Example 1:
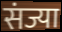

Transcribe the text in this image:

संज्या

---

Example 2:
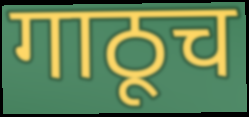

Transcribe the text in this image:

गाठूच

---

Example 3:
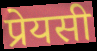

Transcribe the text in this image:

प्रेयसी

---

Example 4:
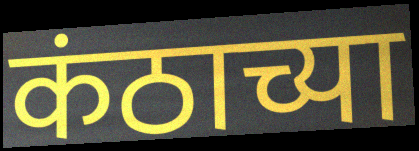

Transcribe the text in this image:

कंठाच्या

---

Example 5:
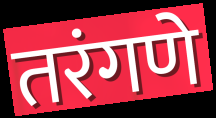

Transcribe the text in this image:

तरंगणे